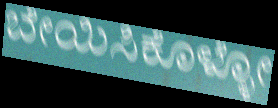
ಬೇಯಿಸಿಕೊಳ್ಳೋ